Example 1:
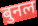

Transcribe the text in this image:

बुनल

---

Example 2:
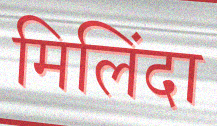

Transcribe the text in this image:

मिलिंदा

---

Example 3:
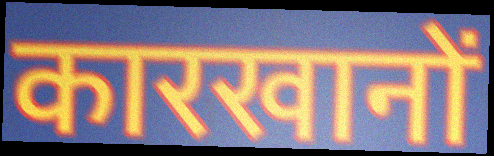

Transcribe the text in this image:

कारखानों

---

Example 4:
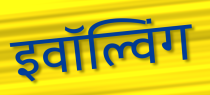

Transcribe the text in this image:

इवॉल्विंग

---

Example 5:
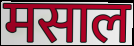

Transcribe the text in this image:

मसाल